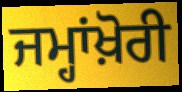
ਜਮ੍ਹਾਂਖ਼ੋਰੀ